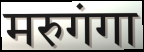
मरुगंगा